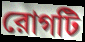
রোগটি